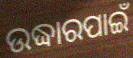
ଉଦ୍ଧାରପାଇଁ